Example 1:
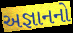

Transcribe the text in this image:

અજ્ઞાનનો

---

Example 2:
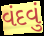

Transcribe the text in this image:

વંદવું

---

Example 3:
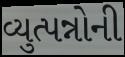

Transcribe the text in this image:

વ્યુત્પન્નોની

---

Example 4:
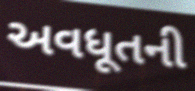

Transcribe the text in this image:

અવધૂતની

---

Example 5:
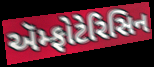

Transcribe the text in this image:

ઍમ્ફોટેરિસિન